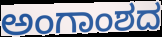
ಅಂಗಾಂಶದ